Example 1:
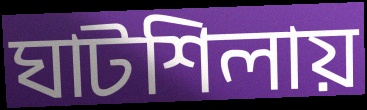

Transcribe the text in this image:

ঘাটশিলায়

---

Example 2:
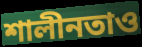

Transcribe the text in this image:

শালীনতাও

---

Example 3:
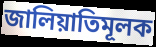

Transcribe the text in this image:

জালিয়াতিমূলক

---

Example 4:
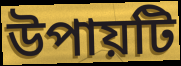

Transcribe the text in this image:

উপায়টি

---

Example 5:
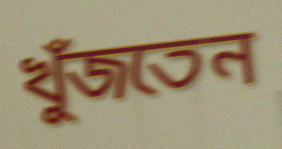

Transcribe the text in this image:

খুঁজতেন